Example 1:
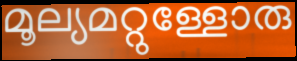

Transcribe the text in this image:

മൂല്യമറ്റുള്ളോരു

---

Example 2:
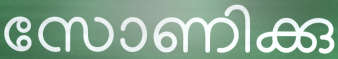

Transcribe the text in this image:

സോണിക്കു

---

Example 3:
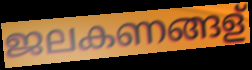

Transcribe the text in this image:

ജലകണങ്ങള്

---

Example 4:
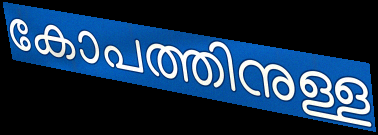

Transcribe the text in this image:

കോപത്തിനുള്ള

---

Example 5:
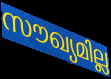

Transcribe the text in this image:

സൗഖ്യമില്ല